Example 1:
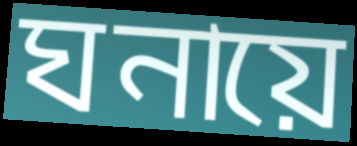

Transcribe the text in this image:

ঘনায়ে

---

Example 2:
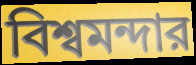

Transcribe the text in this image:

বিশ্বমন্দার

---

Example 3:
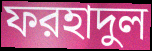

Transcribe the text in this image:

ফরহাদুল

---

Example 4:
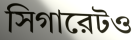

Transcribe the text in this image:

সিগারেটও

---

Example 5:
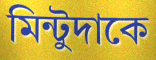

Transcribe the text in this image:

মিন্টুদাকে